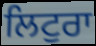
ਲਿਟੁਰਾ